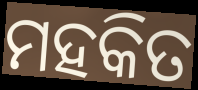
ମହକିତ